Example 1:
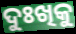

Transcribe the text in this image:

ଦୁଃଖିକୁ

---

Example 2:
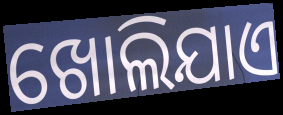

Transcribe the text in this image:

ଖୋଲିଯାଏ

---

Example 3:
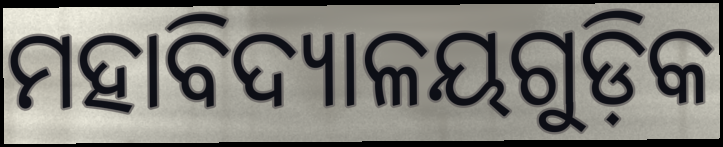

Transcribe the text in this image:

ମହାବିଦ୍ୟାଳୟଗୁଡ଼ିକ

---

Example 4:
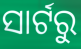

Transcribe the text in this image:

ସାର୍ଟରୁ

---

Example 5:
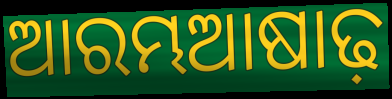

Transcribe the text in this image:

ଆରମ୍ଭଆଷାଢ଼